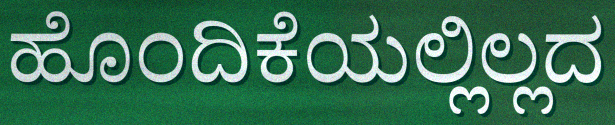
ಹೊಂದಿಕೆಯಲ್ಲಿಲ್ಲದ